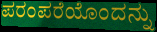
ಪರಂಪರೆಯೊಂದನ್ನು